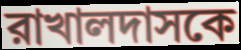
রাখালদাসকে